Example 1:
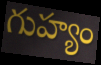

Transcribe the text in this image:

గుహ్యం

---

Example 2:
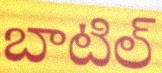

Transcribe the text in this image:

బాటిల్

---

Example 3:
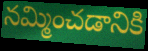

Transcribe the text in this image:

నమ్మించడానికి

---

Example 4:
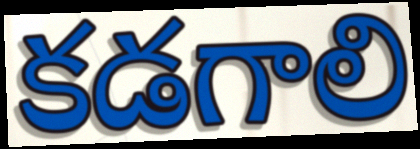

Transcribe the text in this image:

కడగాలి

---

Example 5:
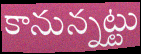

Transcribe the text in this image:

కానున్నట్టు